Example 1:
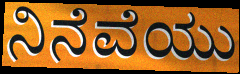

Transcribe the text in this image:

ನಿನೆವೆಯು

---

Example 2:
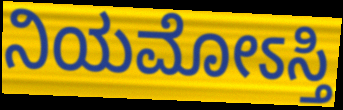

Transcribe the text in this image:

ನಿಯಮೋಽಸ್ತಿ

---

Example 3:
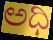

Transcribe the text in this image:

ಅಧಿ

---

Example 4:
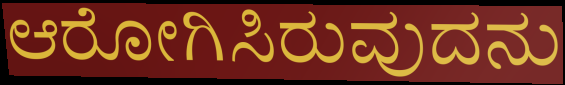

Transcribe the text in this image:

ಆರೋಗಿಸಿರುವುದನು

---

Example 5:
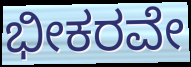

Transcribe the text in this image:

ಭೀಕರವೇ